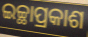
ଇଚ୍ଛାପ୍ରକାଶ